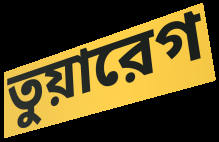
তুয়ারেগ